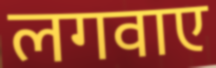
लगवाए